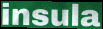
insula